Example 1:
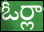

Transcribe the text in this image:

ఓర్లా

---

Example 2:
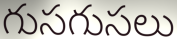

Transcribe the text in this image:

గుసగుసలు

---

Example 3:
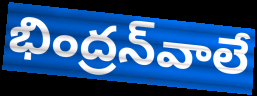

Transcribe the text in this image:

భింద్రన్‌వాలే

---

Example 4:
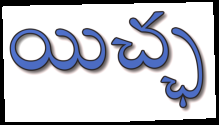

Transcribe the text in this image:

యిచ్ఛ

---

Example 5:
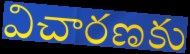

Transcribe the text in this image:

విచారణకు